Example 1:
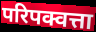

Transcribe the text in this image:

परिपक्वत्ता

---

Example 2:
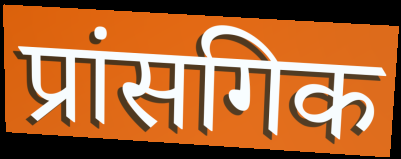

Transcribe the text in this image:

प्रांसगिक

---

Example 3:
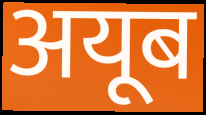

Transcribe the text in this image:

अयूब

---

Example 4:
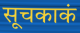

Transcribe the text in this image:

सूचकाकं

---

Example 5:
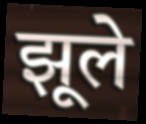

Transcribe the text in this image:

झूले